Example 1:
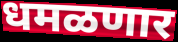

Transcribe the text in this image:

धमळणार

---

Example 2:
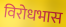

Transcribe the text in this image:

विरोधभास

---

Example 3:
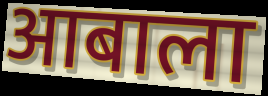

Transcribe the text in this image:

आबाला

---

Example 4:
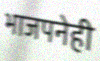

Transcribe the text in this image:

भाजपनेही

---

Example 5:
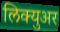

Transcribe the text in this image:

लिक्युअर